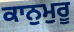
ਕਾਨੁਮੁਰੂ